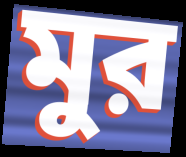
মুর